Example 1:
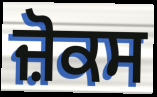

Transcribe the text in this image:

ਜ਼ੋਕਸ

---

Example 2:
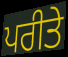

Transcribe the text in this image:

ਪਰੀਤੇ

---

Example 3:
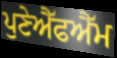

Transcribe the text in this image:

ਪੁਣੇਐੱਫਐੱਮ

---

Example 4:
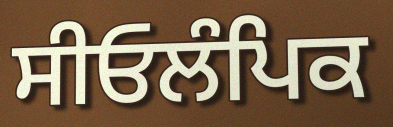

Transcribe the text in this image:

ਸੀਓਲੰਪਿਕ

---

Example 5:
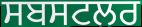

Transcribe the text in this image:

ਸਬਸਟਲਰ